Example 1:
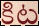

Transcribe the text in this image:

కిట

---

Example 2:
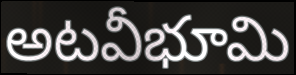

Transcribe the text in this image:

అటవీభూమి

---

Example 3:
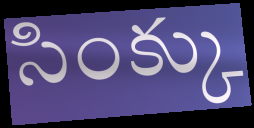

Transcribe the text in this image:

సింక్కు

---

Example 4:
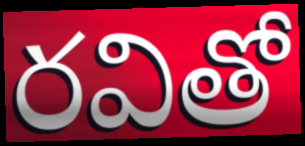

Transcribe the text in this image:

రవితో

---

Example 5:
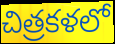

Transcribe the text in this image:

చిత్రకళలో